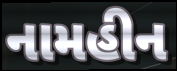
નામહીન